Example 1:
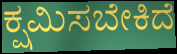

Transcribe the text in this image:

ಕ್ಷಮಿಸಬೇಕಿದೆ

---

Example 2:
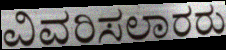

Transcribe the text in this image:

ವಿವರಿಸಲಾರರು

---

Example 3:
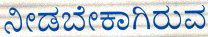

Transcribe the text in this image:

ನೀಡಬೇಕಾಗಿರುವ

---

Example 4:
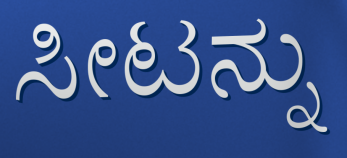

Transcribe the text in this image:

ಸೀಟನ್ನು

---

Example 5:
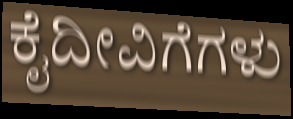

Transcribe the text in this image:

ಕೈದೀವಿಗೆಗಳು